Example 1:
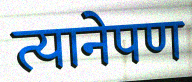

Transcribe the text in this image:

त्यानेपण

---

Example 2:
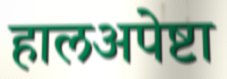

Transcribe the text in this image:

हालअपेष्टा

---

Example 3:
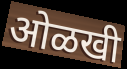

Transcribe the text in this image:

ओळखी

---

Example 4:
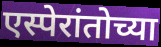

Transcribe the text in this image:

एस्पेरांतोच्या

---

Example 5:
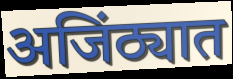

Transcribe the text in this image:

अजिंठ्यात